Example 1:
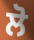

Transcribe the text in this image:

ਲੋ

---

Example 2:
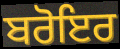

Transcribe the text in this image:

ਬਰੋਇਰ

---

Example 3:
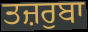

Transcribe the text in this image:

ਤਜ਼ਰੁਬਾ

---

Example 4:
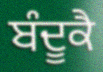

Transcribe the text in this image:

ਬੰਦੂਕੈ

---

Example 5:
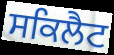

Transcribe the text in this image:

ਸਕਿਲੈਟ